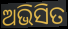
ଅଭିସିତ